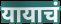
यायाचं